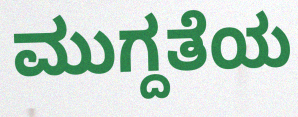
ಮುಗ್ದತೆಯ